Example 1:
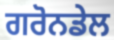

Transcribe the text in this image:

ਗਰੋਨਡੇਲ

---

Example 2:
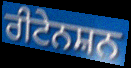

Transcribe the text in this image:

ਰੀਟੇਨਸ਼ਨ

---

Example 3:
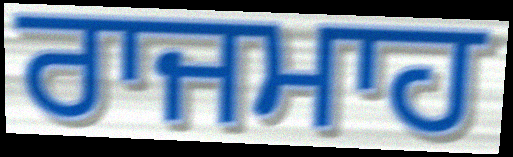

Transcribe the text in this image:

ਰਾਜਮਾਹ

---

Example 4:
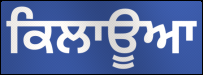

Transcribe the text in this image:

ਕਿਲਾਊਆ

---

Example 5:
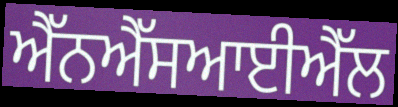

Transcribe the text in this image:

ਐੱਨਐੱਸਆਈਐੱਲ